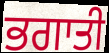
ਭਗਾਤੀ